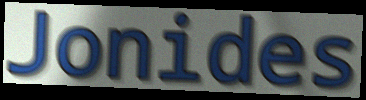
Jonides